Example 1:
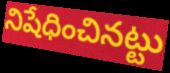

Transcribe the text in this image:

నిషేధించినట్టు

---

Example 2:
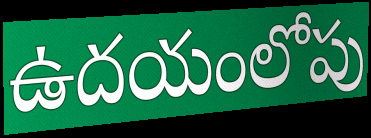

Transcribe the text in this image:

ఉదయంలోపు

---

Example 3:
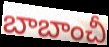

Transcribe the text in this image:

బాబాంచీ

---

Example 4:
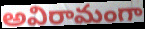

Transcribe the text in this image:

అవిరామంగా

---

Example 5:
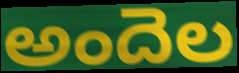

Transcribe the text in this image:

అందెల